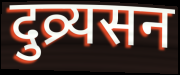
दुव्र्यसन